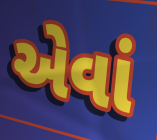
એવાં